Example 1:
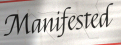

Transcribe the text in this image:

Manifested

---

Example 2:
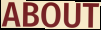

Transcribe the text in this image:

ABOUT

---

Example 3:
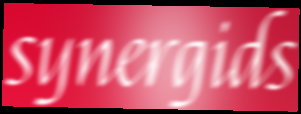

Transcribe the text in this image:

synergids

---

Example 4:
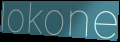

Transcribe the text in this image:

lokone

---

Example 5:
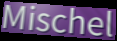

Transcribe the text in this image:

Mischel